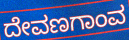
ದೇವಣಗಾಂವ